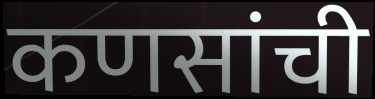
कणसांची